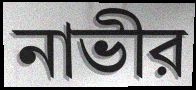
নাভীর